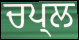
ਚਪ੍ਲ